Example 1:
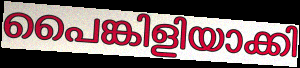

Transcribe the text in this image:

പൈങ്കിളിയാക്കി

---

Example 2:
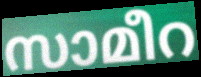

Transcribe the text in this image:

സാമീറ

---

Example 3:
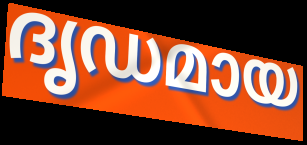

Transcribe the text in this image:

ദൃഡമായ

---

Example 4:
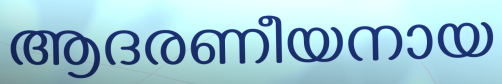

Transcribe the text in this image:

ആദരണീയനായ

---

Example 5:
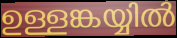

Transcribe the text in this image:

ഉള്ളങ്കയ്യിൽ